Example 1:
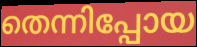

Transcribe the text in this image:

തെന്നിപ്പോയ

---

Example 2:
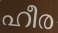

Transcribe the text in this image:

ഹീര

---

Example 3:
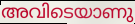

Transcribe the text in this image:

അവിടെയാണു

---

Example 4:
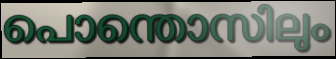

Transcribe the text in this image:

പൊന്തൊസിലും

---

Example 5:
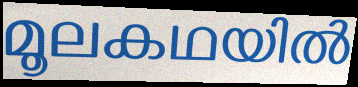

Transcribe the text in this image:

മൂലകഥയിൽ